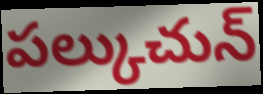
పల్కుచున్